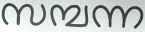
സമ്പന്ന